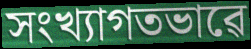
সংখ্যাগতভাৱে